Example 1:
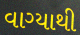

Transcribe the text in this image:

વાગ્યાથી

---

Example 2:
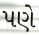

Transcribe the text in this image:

પણે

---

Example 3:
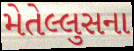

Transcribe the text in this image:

મેતેલ્લુસના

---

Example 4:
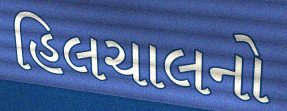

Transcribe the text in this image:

હિલચાલનો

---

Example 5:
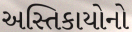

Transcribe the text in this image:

અસ્તિકાયોનો